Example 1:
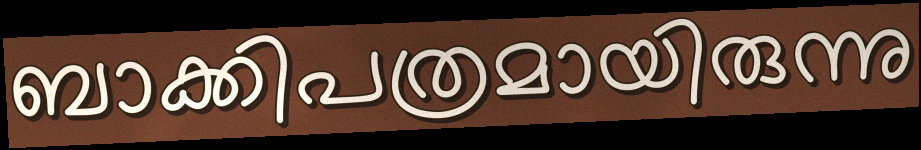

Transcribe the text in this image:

ബാക്കിപത്രമായിരുന്നു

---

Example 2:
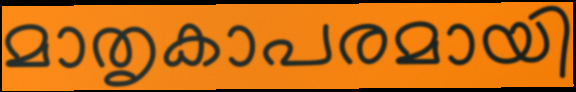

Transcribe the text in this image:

മാതൃകാപരമായി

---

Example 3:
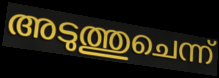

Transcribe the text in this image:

അടുത്തുചെന്ന്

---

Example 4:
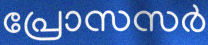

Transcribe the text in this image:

പ്രോസസർ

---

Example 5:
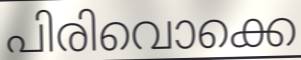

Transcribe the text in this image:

പിരിവൊക്കെ